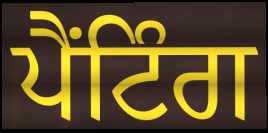
ਪੈਂਟਿੰਗ